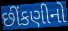
છીંકણીનો